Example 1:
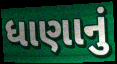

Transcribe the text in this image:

ધાણાનું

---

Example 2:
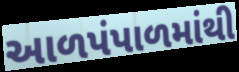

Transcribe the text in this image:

આળપંપાળમાંથી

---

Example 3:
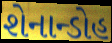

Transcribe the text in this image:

શેનાન્ડોહ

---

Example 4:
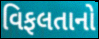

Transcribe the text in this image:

વિફલતાનો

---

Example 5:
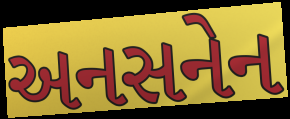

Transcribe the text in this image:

અનસનેન